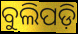
ବୁଲିପଡ଼ି